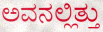
ಅವನಲ್ಲಿತ್ತು